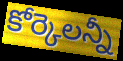
కోర్కెలన్నీ